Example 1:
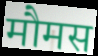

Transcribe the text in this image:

मौमस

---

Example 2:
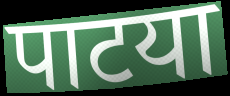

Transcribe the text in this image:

पाटया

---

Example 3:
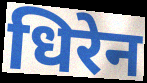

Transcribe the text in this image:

धिरेन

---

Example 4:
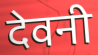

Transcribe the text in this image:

देवनी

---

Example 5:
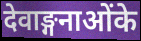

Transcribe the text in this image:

देवाङ्गनाओंके